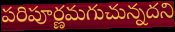
పరిపూర్ణమగుచున్నదని